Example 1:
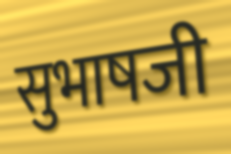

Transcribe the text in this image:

सुभाषजी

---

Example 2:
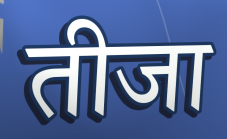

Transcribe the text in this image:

तीजा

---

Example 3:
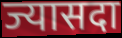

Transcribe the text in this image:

ज्यासदा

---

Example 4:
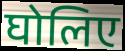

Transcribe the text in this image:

घोलिए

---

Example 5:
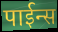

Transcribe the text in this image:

पाईन्स